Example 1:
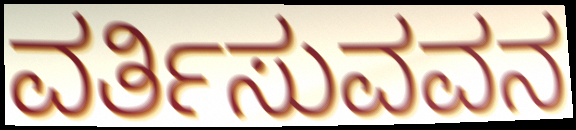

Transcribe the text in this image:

ವರ್ತಿಸುವವನ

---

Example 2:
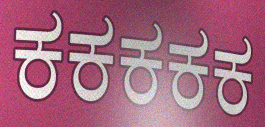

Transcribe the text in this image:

ಕಕಕಕಕ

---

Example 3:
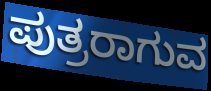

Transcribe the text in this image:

ಪುತ್ರರಾಗುವ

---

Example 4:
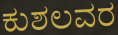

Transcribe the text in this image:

ಕುಶಲವರ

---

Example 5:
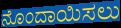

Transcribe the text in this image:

ನೊಂದಾಯಿಸಲು